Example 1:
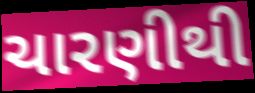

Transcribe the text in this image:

ચારણીથી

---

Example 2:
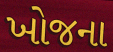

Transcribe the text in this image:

ખોજના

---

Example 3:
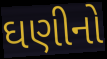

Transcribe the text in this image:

ઘણીનો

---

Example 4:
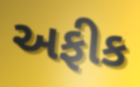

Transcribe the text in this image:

અફીક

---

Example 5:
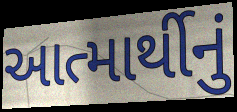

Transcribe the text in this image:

આત્માર્થીનું